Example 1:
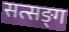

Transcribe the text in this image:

सत्सङ्ग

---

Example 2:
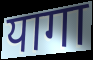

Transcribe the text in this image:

यागा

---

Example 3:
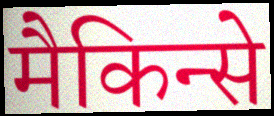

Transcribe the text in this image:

मैकिन्से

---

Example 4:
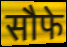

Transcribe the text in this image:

सौफे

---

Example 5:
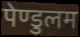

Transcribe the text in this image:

पेण्डुलम